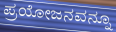
ಪ್ರಯೋಜನವನ್ನೂ